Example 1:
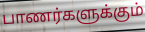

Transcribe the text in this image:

பாணர்களுக்கும்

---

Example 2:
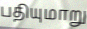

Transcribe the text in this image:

பதியுமாறு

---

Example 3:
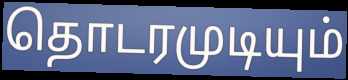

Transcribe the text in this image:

தொடரமுடியும்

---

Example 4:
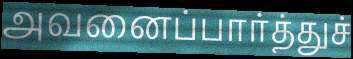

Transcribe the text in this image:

அவனைப்பார்த்துச்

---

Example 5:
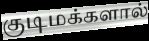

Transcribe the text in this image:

குடிமக்களால்